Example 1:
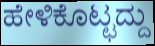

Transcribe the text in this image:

ಹೇಳಿಕೊಟ್ಟದ್ದು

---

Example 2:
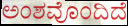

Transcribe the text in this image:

ಅಂಶವೊಂದಿದೆ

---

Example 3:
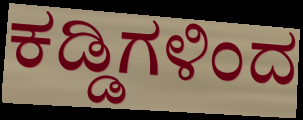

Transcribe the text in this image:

ಕಡ್ಡಿಗಳಿಂದ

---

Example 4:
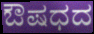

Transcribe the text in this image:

ಔಷಧದ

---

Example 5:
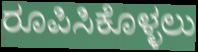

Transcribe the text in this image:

ರೂಪಿಸಿಕೊಳ್ಳಲು